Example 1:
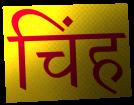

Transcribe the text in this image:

चिंह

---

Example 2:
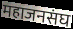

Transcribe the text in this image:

महाजनसंघ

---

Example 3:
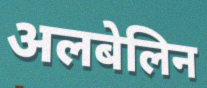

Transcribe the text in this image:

अलबेलिन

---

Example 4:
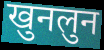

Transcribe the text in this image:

खुनलुन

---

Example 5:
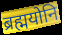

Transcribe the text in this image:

ब्रह्मयोनि